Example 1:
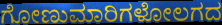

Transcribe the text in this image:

ಗೋಣುಮಾರಿಗಳೋಲಗದ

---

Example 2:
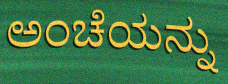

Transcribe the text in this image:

ಅಂಚೆಯನ್ನು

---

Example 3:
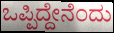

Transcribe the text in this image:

ಒಪ್ಪಿದ್ದೇನೆಂದು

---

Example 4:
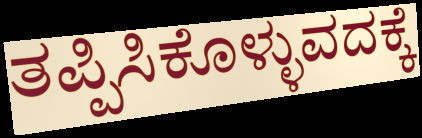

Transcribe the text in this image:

ತಪ್ಪಿಸಿಕೊಳ್ಳುವದಕ್ಕೆ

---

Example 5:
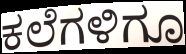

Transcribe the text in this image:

ಕಲೆಗಳಿಗೂ